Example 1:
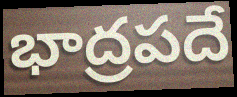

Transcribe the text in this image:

భాద్రపదే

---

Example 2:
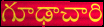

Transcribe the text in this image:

గూఢాచారి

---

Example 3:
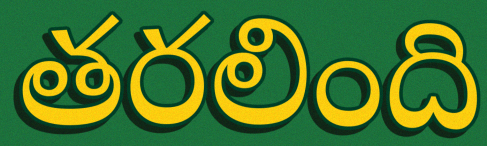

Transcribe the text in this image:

తరలింది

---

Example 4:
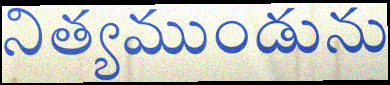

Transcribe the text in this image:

నిత్యముండును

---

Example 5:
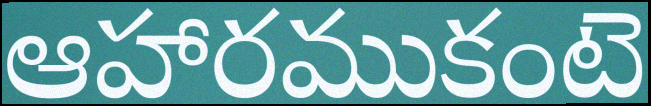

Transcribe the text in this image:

ఆహారముకంటె